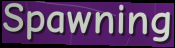
Spawning